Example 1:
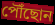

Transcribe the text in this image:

পৌঁছোন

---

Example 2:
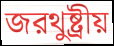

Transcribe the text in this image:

জরথুষ্ট্রীয়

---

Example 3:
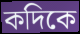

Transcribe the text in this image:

কদিকে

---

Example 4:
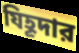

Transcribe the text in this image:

যিহূদার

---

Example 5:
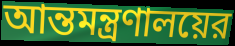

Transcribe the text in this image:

আন্তমন্ত্রণালয়ের